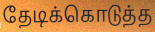
தேடிக்கொடுத்த